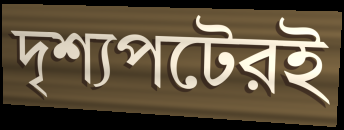
দৃশ্যপটেরই